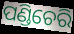
ପଣ୍ଡିଚେରି